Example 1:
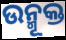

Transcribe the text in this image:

ଉନ୍ମୂକ୍ତ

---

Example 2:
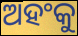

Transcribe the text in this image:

ଅହଂକୁ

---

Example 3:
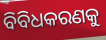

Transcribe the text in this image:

ବିବିଧକରଣକୁ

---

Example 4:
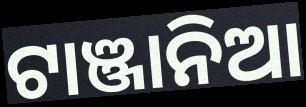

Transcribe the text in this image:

ଟାଞ୍ଜାନିଆ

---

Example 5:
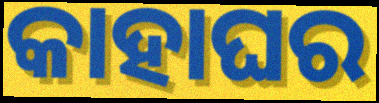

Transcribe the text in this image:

କାହାଘର